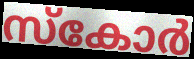
സ്കോർ